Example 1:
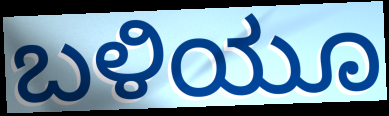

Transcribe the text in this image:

ಬಳಿಯೂ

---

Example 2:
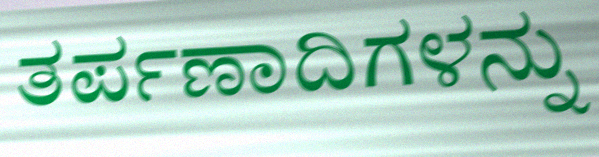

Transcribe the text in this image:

ತರ್ಪಣಾದಿಗಳನ್ನು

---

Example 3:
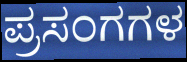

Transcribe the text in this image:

ಪ್ರಸಂಗಗಳ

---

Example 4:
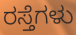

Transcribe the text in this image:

ರಸ್ತೆಗಳು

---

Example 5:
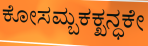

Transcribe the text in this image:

ಕೋಸಮ್ಬಕಕ್ಖನ್ಧಕೇ